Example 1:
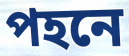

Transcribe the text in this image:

পহনে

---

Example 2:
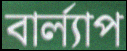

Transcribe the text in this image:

বার্ল্যাপ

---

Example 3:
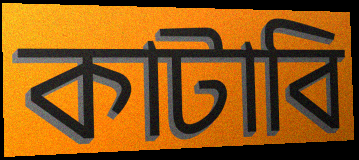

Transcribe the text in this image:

কাটাবি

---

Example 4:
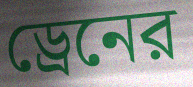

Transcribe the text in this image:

ড্রেনের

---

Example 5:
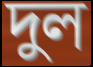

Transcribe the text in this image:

দুল